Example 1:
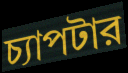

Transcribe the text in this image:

চ্যাপটার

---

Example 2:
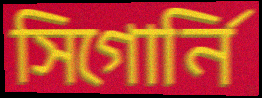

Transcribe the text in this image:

সিগোর্নি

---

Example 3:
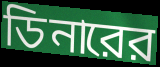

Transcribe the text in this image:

ডিনারের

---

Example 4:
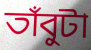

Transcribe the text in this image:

তাঁবুটা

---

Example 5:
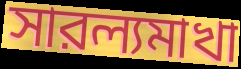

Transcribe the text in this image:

সারল্যমাখা